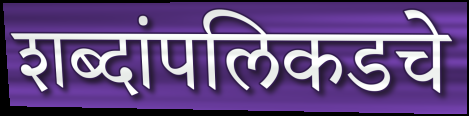
शब्दांपलिकडचे